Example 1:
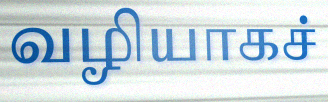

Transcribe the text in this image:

வழியாகச்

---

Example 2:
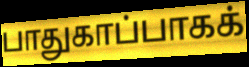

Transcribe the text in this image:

பாதுகாப்பாகக்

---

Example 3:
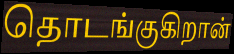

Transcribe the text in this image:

தொடங்குகிறான்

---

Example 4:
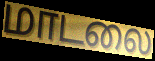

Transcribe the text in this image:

மாடலை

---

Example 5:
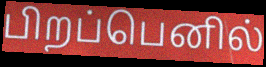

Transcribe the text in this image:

பிறப்பெனில்